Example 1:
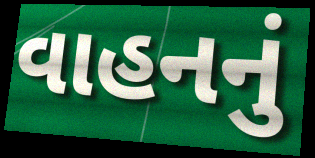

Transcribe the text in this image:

વાહનનું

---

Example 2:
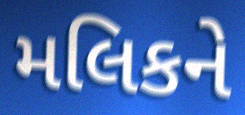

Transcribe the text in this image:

મલિકને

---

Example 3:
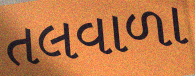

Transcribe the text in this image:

તલવાળા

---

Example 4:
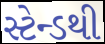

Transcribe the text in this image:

સ્ટેન્ડથી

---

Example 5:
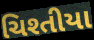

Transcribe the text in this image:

ચિશ્તીયા